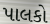
પાલકો